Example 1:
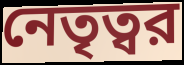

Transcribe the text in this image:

নেতৃত্বর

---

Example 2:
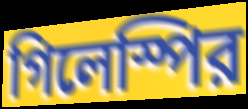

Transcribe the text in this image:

গিলেস্পির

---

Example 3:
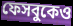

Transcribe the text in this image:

ফেসবুকেও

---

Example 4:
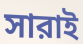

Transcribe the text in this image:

সারাই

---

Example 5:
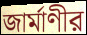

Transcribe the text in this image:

জার্মাণীর